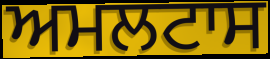
ਅਮਲਟਾਸ